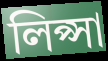
লিপ্সা